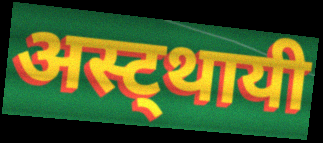
अस्ट्थायी